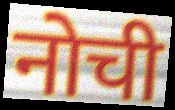
नोची